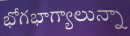
భోగభాగ్యాలున్నా